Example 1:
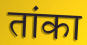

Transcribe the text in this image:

तांका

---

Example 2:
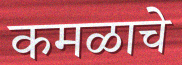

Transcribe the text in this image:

कमळाचे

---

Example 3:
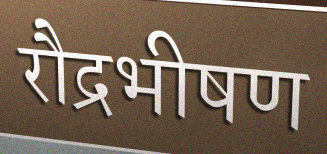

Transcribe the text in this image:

रौद्रभीषण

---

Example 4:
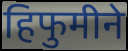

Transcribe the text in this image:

हिफुमीने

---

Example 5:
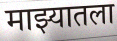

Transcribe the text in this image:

माझ्यातला